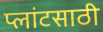
प्लांटसाठी